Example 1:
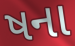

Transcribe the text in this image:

ષના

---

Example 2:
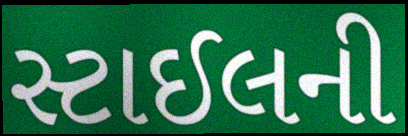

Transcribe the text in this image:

સ્ટાઈલની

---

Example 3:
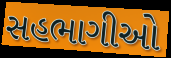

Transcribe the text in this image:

સહભાગીઓ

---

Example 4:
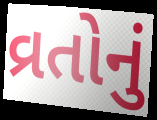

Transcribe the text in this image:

વ્રતોનું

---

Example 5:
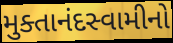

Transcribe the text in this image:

મુક્તાનંદસ્વામીનો